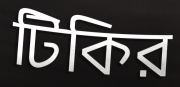
টিকির